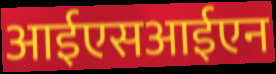
आईएसआईएन